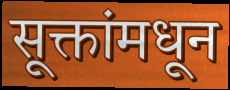
सूक्तांमधून